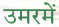
उमरमें